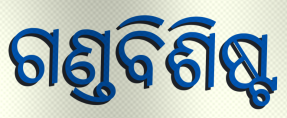
ଗଣ୍ଡବିଶିଷ୍ଟ